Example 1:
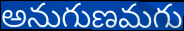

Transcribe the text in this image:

అనుగుణమగు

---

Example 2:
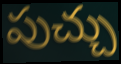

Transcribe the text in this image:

పుచ్చు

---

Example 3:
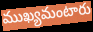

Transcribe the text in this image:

ముఖ్యమంటారు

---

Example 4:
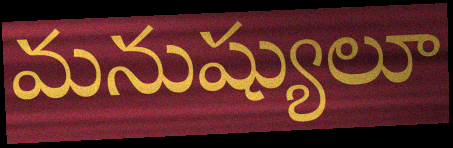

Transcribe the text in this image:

మనుష్యులూ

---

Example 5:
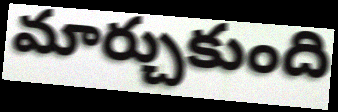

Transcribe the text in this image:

మార్చుకుంది